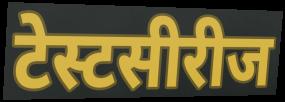
टेस्टसीरीज